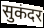
सुकंदर